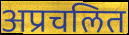
अप्रचलित